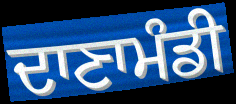
ਦਾਣਾਮੰਡੀ